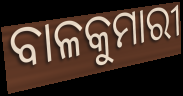
ବାଳକୁମାରୀ